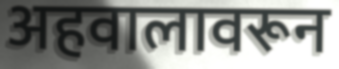
अहवालावरून